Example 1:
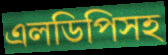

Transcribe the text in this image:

এলডিপিসহ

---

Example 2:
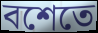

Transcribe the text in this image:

বশেতে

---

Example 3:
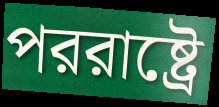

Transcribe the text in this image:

পররাষ্ট্রে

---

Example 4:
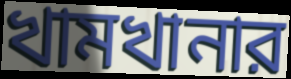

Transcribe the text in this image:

খামখানার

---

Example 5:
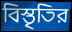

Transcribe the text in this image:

বিস্তৃতির